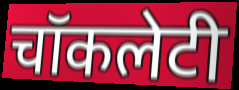
चॉकलेटी